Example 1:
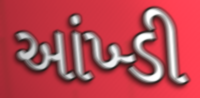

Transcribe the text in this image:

આંખ્ડી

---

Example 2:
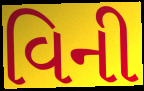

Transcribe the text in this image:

વિની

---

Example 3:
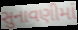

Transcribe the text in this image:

સુનાવણીમાં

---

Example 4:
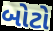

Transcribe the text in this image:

બોટો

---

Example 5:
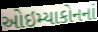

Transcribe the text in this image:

ઓઇમ્યાકોનનાં